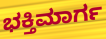
ಭಕ್ತಿಮಾರ್ಗ